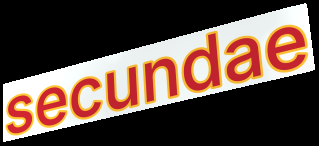
secundae